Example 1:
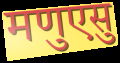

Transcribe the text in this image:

मणुएसु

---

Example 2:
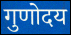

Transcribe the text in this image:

गुणोदय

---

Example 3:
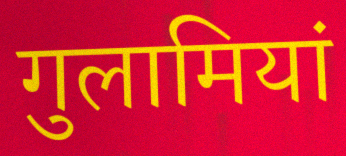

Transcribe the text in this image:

गुलामियां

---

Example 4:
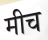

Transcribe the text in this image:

मीच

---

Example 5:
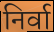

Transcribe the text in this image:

निर्वा